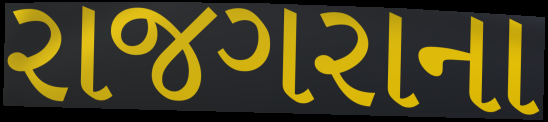
રાજગરાના